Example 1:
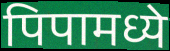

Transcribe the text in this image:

पिपामध्ये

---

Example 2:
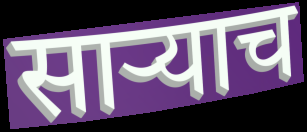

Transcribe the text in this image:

साऱ्याच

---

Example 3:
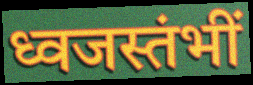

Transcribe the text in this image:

ध्वजस्तंभीं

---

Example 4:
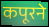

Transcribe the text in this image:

कपूरने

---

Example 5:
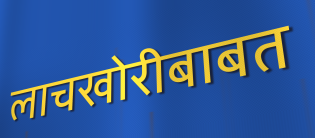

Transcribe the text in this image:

लाचखोरीबाबत